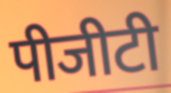
पीजीटी